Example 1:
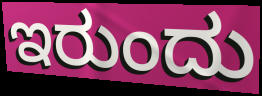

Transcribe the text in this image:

ಇರುಂದು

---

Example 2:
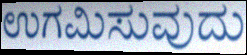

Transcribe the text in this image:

ಉಗಮಿಸುವುದು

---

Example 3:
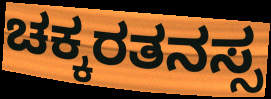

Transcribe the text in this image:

ಚಕ್ಕರತನಸ್ಸ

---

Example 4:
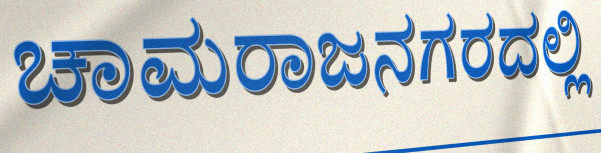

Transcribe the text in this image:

ಚಾಮರಾಜನಗರದಲ್ಲಿ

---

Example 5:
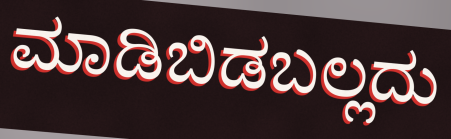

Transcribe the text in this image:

ಮಾಡಿಬಿಡಬಲ್ಲದು